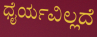
ಧೈರ್ಯವಿಲ್ಲದೆ